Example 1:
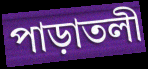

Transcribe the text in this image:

পাড়াতলী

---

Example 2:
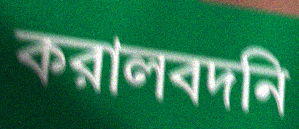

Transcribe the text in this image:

করালবদনি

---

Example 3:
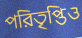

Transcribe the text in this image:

পরিতৃপ্তিও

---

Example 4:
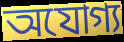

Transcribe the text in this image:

অযোগ্য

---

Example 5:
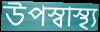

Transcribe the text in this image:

উপস্বাস্থ্য